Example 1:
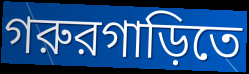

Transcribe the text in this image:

গরুরগাড়িতে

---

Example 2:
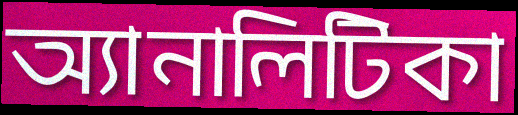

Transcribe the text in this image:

অ্যানালিটিকা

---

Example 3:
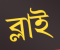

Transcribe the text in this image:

ব্লাই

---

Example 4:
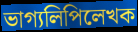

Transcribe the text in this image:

ভাগ্যলিপিলেখক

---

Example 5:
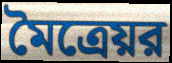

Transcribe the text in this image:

মৈত্রেয়র